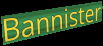
Bannister